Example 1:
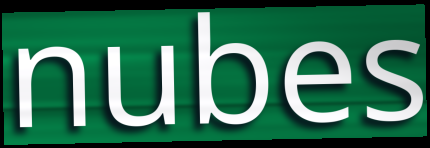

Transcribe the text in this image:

nubes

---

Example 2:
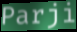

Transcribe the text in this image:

Parji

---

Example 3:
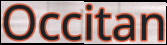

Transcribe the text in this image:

Occitan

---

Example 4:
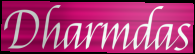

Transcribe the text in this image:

Dharmdas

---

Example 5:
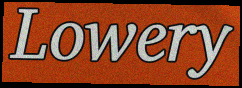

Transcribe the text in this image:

Lowery